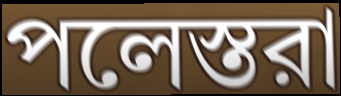
পলেস্তরা